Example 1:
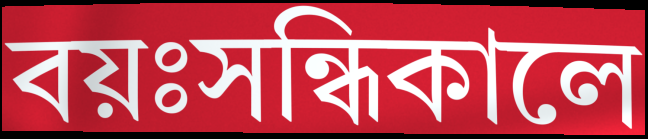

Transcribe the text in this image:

বয়ঃসন্ধিকালে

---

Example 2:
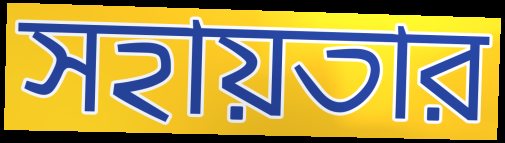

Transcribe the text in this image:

সহায়তার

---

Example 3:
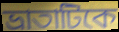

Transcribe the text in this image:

ভ্রাতাটিকে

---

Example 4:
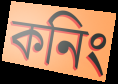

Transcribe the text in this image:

কনিং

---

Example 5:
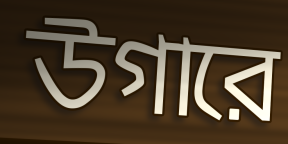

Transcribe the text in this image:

উগারে